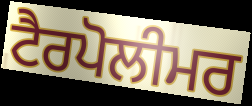
ਟੈਰਪੋਲੀਮਰ